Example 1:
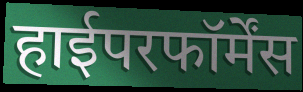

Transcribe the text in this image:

हाईपरफॉर्मेंस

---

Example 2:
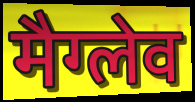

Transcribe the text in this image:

मैग्लेव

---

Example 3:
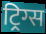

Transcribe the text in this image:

ट्रिग्स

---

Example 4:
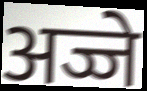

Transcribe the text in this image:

अज्जे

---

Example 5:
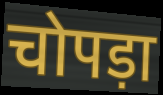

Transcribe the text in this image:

चोपड़ा